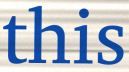
this